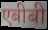
एबीबी